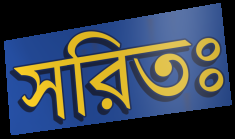
সরিতঃ